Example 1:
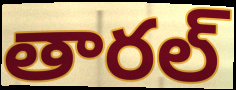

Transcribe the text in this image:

తారల్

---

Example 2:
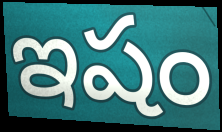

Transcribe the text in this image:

ఇషం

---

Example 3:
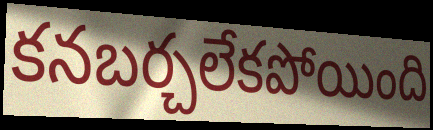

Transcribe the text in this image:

కనబర్చలేకపోయింది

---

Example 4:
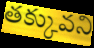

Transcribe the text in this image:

తక్కువని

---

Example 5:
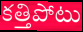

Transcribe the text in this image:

కత్తిపోటు